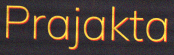
Prajakta